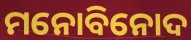
ମନୋବିନୋଦ